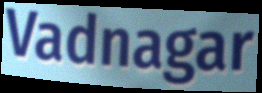
Vadnagar